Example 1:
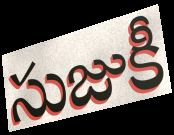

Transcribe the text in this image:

సుజుకీ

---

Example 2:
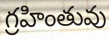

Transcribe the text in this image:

గ్రహింతువు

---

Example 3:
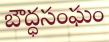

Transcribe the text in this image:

బౌద్ధసంఘం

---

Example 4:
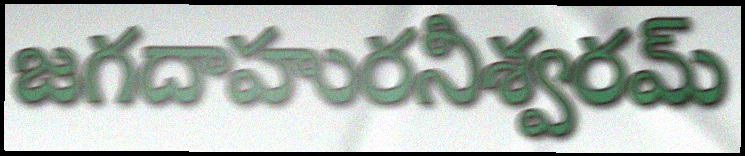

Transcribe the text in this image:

జగదాహురనీశ్వరమ్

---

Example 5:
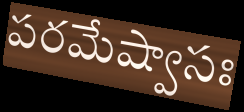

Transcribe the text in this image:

పరమేష్వాసః